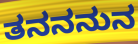
ತನನನುನ